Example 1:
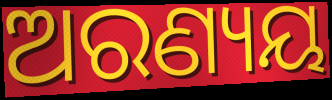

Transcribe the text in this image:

ଅରଣ୍ୟୟ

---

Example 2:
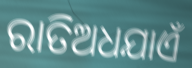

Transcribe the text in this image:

ରାତିଅଧଯାଏଁ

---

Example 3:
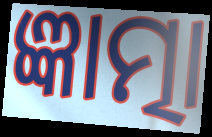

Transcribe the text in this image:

ଜ୍ଞାତ୍ମା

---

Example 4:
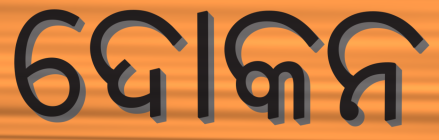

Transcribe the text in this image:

ଦୋକନ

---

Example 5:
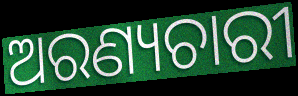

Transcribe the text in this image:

ଅରଣ୍ୟଚାରୀ